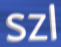
szl